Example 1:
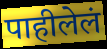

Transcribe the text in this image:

पाहीलेलं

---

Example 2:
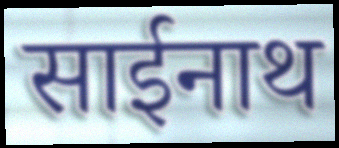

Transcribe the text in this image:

साईनाथ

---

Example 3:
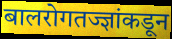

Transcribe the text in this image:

बालरोगतज्ज्ञांकडून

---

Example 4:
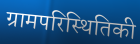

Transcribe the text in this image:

ग्रामपरिस्थितिकी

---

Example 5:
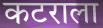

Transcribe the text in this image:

कटराला